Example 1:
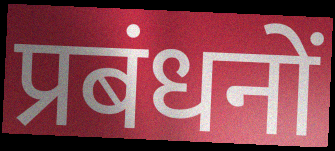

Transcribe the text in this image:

प्रबंधनों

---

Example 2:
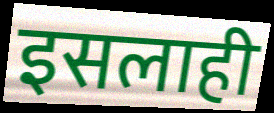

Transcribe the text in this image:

इसलाही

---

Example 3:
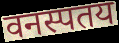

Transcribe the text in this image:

वनस्पतय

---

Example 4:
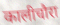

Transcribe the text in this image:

कालीचौरा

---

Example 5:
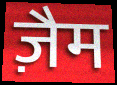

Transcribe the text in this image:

ज़ैम